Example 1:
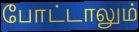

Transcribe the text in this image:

போட்டாலும்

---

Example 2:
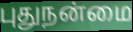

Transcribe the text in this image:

புதுநன்மை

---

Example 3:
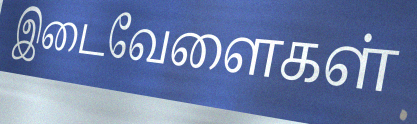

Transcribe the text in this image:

இடைவேளைகள்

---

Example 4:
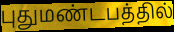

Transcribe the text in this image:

புதுமண்டபத்தில்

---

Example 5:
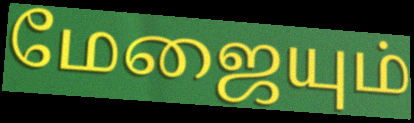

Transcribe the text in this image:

மேஜையும்